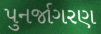
પુનર્જાગરણ